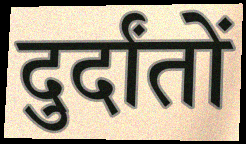
दुर्दांतों